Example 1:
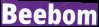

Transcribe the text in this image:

Beebom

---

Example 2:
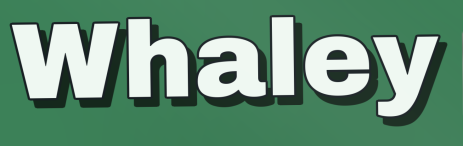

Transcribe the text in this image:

Whaley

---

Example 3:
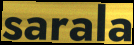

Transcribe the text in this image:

sarala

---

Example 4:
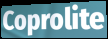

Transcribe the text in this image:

Coprolite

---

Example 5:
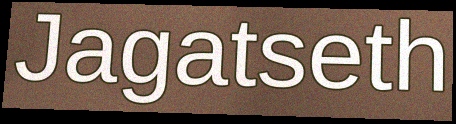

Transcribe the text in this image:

Jagatseth